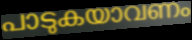
പാടുകയാവണം